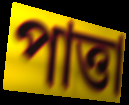
পাত্তা